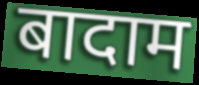
बादाम